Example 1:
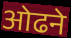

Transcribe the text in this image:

ओढने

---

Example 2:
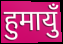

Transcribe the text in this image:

हुमायुँ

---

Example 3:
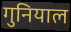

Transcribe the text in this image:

गुनियाल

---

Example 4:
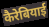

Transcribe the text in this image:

कैरेबियाई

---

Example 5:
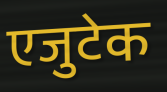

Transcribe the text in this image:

एजुटेक